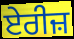
ਏਰੀਜ਼